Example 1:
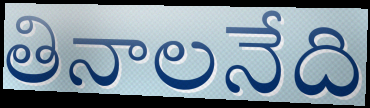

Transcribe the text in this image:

తినాలనేది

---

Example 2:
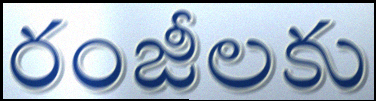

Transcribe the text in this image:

రంజీలకు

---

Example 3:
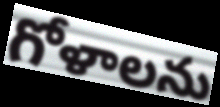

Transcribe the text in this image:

గోళాలను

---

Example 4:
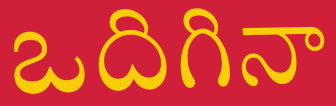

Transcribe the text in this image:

ఒదిగినా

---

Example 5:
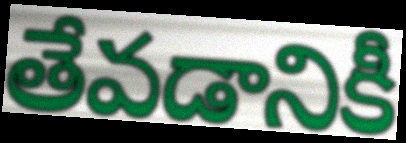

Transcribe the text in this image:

తేవడానికీ